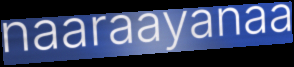
naaraayanaa